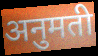
अनुमती